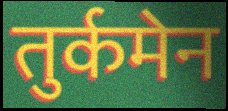
तुर्कमेन